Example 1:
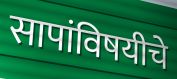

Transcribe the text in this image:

सापांविषयीचे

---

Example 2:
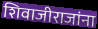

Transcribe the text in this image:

शिवाजीराजांना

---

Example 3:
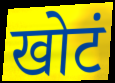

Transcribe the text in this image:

खोटं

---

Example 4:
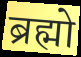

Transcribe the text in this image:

ब्रह्मो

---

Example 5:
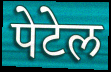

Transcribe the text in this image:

पेटेल